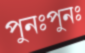
পুনঃপুনঃ